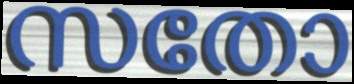
സതോ